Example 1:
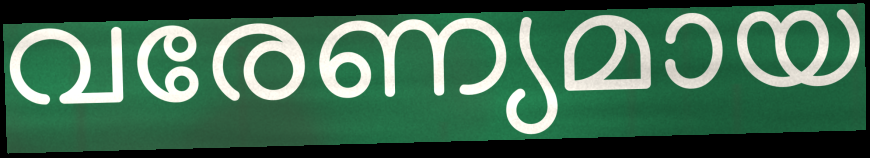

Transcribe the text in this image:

വരേണ്യമായ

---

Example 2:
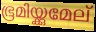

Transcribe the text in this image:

ഭൂമിയ്ക്കുമേല്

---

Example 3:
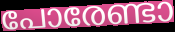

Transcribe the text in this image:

പോരേണ്ടാ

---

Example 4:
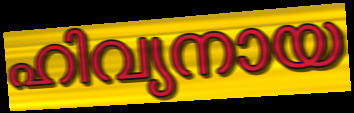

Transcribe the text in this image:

ഹിവ്യനായ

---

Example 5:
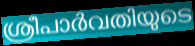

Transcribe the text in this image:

ശ്രീപാർവതിയുടെ